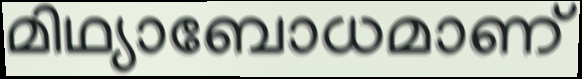
മിഥ്യാബോധമാണ്